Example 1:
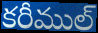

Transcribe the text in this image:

కరీముల్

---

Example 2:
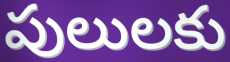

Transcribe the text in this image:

పులులకు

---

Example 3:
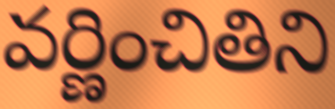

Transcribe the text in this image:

వర్ణించితిని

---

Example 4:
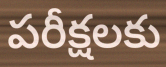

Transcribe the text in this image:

పరీక్షలకు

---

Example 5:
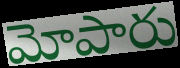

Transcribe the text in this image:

మోపారు